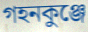
গহনকুঞ্জে